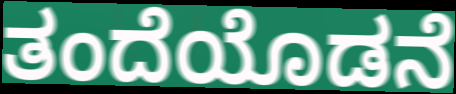
ತಂದೆಯೊಡನೆ